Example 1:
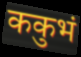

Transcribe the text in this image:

ककुभं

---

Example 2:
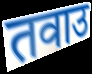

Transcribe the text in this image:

तवाउ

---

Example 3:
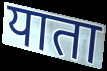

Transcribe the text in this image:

याता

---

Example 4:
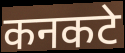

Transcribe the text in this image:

कनकटे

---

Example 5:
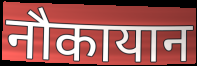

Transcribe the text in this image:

नौकायान